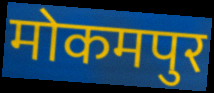
मोकमपुर